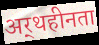
अर्थहीनता